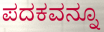
ಪದಕವನ್ನೂ